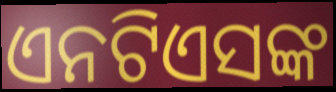
ଏନଟିଏସଙ୍କ